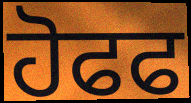
ਹੋਫਫ